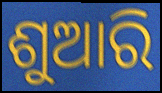
ଶୁଆରି